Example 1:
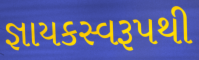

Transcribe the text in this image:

જ્ઞાયકસ્વરૂપથી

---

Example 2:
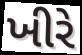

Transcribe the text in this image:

ખીરે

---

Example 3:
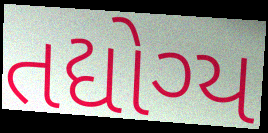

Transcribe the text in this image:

તદ્યોગ્ય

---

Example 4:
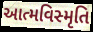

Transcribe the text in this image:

આત્મવિસ્મૃતિ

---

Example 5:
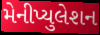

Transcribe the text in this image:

મેનીપ્યુલેશન